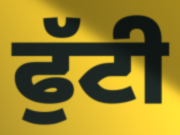
ਫੁੱਟੀ